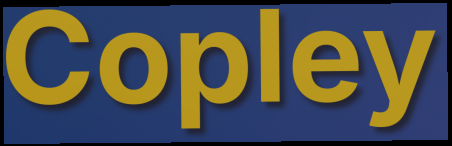
Copley